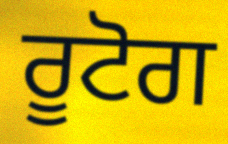
ਰੂਟੋਗ